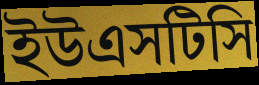
ইউএসটিসি